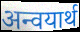
अन्वयार्थ